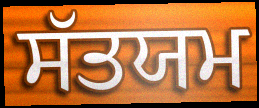
ਸੱਤਯਮ